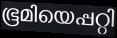
ഭൂമിയെപ്പറ്റി